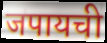
जपायची